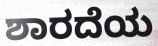
ಶಾರದೆಯ